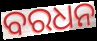
ବରଧନ